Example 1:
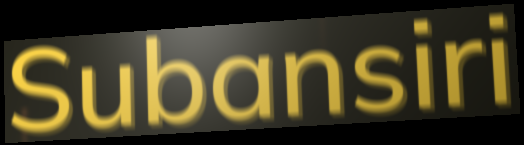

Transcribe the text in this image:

Subansiri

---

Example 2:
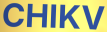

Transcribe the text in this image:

CHIKV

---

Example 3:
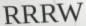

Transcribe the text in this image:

RRRW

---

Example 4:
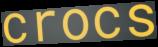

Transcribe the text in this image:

crocs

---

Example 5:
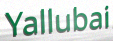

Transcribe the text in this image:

Yallubai